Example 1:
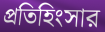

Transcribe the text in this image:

প্রতিহিংসার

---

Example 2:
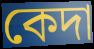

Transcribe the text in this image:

কেদা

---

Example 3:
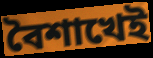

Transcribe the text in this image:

বৈশাখেই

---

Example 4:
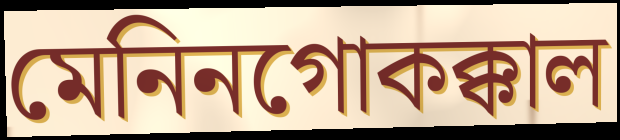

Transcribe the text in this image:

মেনিনগোকক্কাল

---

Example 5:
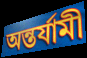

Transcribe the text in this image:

অন্তর্যামী